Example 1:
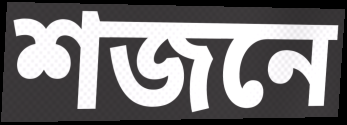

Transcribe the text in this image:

শজনে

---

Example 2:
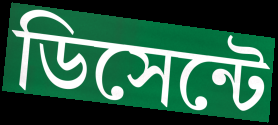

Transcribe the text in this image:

ডিসেন্টে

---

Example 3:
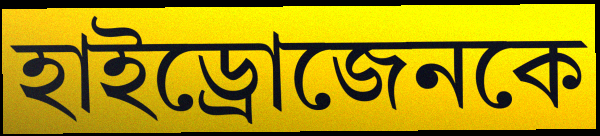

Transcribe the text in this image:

হাইড্রোজেনকে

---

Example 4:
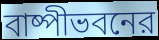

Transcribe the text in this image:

বাষ্পীভবনের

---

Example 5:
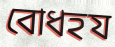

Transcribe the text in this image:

বোধহয